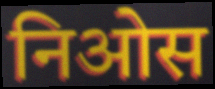
निओस